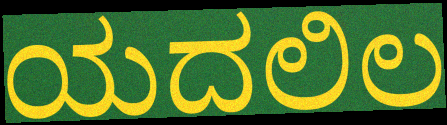
ಯದಲಿಲ